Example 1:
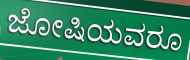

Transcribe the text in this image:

ಜೋಷಿಯವರೂ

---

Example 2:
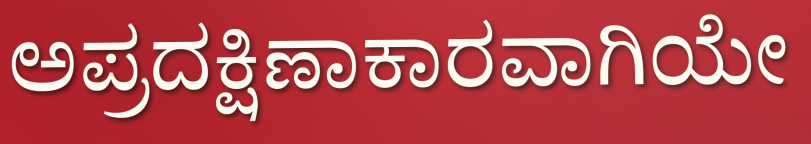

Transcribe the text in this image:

ಅಪ್ರದಕ್ಷಿಣಾಕಾರವಾಗಿಯೇ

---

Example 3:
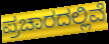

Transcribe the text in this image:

ಪ್ರಚಾರದಲ್ಲಿವೆ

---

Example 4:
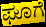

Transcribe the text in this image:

ಘೂಗೆ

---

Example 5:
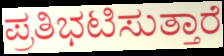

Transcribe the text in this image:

ಪ್ರತಿಭಟಿಸುತ್ತಾರೆ